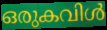
ഒരുകവിൾ